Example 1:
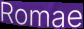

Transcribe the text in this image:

Romae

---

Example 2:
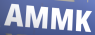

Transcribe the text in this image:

AMMK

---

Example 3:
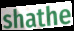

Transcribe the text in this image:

shathe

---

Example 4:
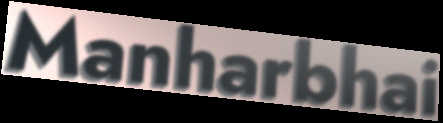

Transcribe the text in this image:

Manharbhai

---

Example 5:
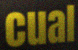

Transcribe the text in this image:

cual